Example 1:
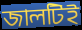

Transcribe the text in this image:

জালটিই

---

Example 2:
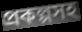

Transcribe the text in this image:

প্রকল্পসহ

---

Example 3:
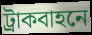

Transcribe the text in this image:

ট্রাকবাহনে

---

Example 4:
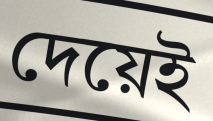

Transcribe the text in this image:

দেয়েই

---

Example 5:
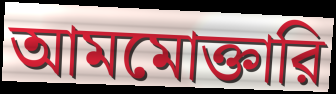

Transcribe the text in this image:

আমমোক্তারি